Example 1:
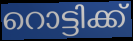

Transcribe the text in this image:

റൊട്ടിക്ക്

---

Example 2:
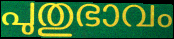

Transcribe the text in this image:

പുതുഭാവം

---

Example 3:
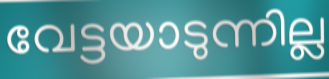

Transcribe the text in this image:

വേട്ടയാടുന്നില്ല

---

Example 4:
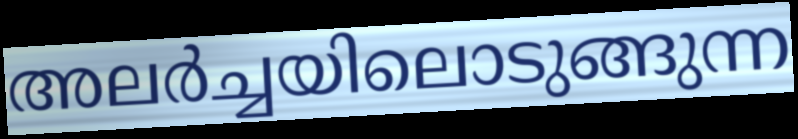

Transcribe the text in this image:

അലർച്ചയിലൊടുങ്ങുന്ന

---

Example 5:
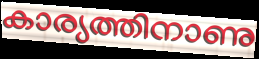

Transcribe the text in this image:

കാര്യത്തിനാണു